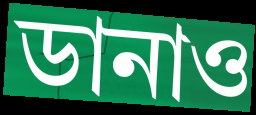
ডানাও